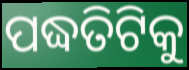
ପଦ୍ଧତିଟିକୁ